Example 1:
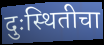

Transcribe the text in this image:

दुःस्थितीचा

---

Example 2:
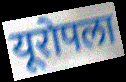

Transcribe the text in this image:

यूरोपला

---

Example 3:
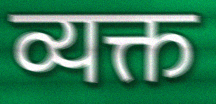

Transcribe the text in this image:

व्यक्त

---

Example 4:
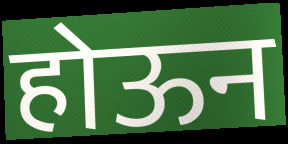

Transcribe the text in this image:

होऊन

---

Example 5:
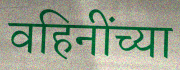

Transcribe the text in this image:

वहिनींच्या